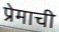
प्रेमाची